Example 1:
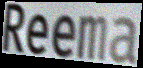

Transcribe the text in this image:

Reema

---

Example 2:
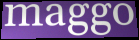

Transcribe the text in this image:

maggo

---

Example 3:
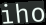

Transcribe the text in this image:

iho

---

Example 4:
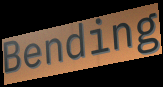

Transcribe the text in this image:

Bending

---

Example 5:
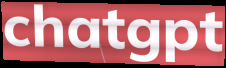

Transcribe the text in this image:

chatgpt